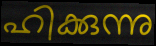
ഹിക്കുന്നു